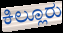
ಕಿಲ್ಲೂರು